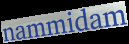
nammidam